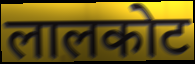
लालकोट